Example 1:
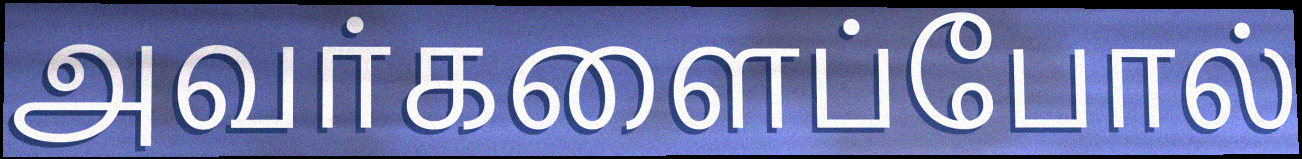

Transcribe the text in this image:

அவர்களைப்போல்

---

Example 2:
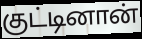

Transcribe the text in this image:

குட்டினான்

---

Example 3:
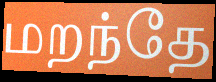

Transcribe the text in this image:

மறந்தே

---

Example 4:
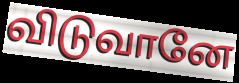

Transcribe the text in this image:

விடுவானே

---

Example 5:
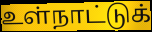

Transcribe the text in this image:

உள்நாட்டுக்